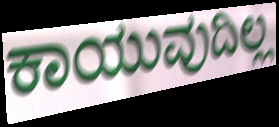
ಕಾಯುವುದಿಲ್ಲ